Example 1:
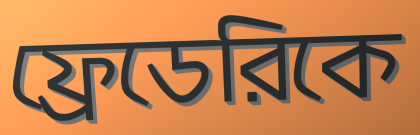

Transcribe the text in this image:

ফ্রেডেরিকে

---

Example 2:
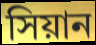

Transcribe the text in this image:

সিয়ান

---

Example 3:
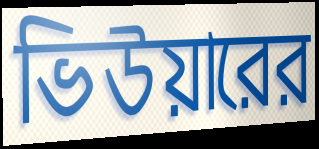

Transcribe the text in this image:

ভিউয়ারের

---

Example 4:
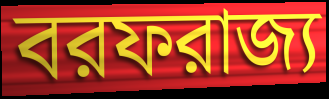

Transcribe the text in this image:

বরফরাজ্য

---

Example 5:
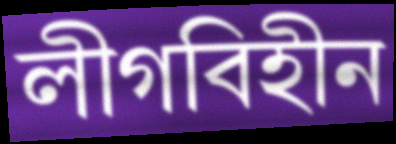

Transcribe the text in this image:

লীগবিহীন